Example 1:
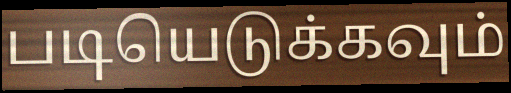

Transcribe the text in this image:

படியெடுக்கவும்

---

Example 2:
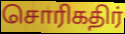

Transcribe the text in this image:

சொரிகதிர்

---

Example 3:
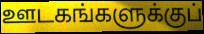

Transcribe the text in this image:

ஊடகங்களுக்குப்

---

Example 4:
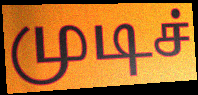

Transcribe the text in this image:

முடிச்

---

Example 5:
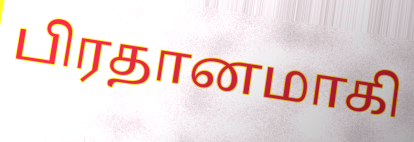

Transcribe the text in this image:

பிரதானமாகி